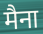
मैना